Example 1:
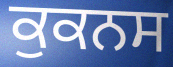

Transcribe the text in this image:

ਕੁਕਨਸ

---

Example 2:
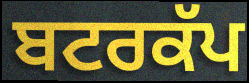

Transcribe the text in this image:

ਬਟਰਕੱਪ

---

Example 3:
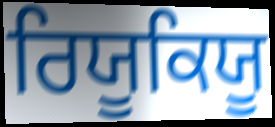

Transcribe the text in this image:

ਰਿਯੂਕਿਯੂ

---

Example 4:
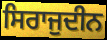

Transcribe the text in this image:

ਸਿਰਾਜੁਦੀਨ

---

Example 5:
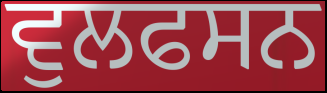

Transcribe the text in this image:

ਵੁਲਫਸਨ